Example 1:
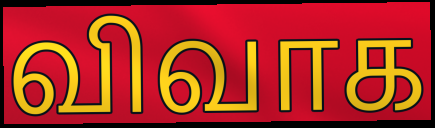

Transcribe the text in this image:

விவாக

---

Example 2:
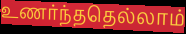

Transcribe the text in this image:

உணர்ந்ததெல்லாம்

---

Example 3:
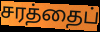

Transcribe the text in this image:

சரத்தைப்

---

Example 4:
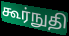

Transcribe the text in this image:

கூர்நுதி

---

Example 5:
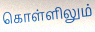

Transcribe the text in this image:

கொள்ளிலும்